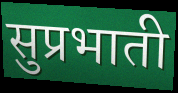
सुप्रभाती